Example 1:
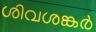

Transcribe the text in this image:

ശിവശങ്കർ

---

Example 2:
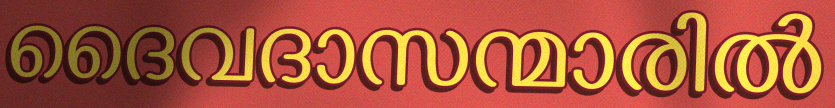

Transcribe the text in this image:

ദൈവദാസന്മാരിൽ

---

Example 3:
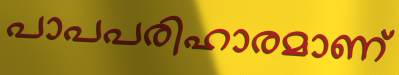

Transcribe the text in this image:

പാപപരിഹാരമാണ്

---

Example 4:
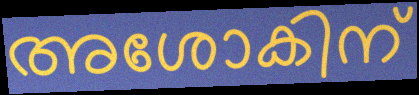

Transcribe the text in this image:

അശോകിന്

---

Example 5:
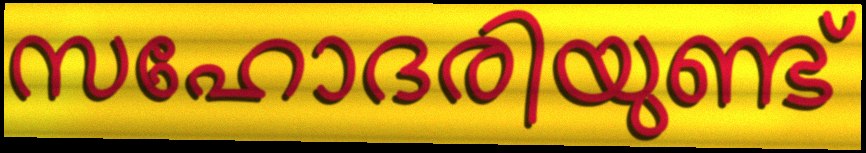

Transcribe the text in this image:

സഹോദരിയുണ്ട്